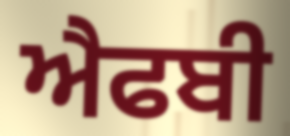
ਐਫਬੀ